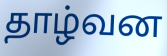
தாழ்வன